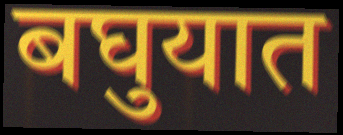
बघुयात